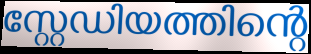
സ്റ്റേഡിയത്തിന്റെ